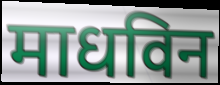
माधविन